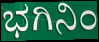
ಭಗಿನಿಂ